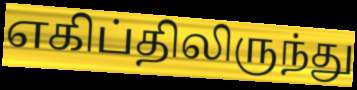
எகிப்திலிருந்து